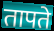
तापते